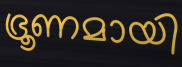
ഭ്രൂണമായി